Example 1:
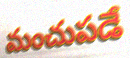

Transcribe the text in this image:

మంచుపడే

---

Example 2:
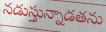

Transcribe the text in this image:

నడుస్తున్నాడతను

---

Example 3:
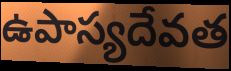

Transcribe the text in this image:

ఉపాస్యదేవత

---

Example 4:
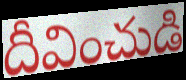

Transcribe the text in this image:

దీవించుడి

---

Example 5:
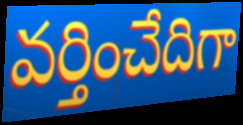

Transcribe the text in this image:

వర్తించేదిగా